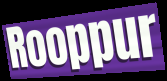
Rooppur